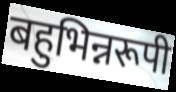
बहुभिन्नरूपी